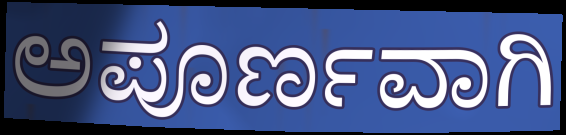
ಅಪೂರ್ಣವಾಗಿ